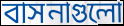
বাসনাগুলো